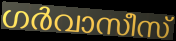
ഗർവാസീസ്